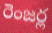
రెంజర్ల